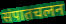
संपातचलन